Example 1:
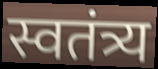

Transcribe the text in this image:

स्वतंत्र्य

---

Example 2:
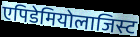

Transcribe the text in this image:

एपिडेमियोलाजिस्ट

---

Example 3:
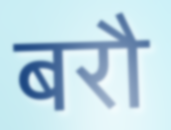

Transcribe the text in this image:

बरौ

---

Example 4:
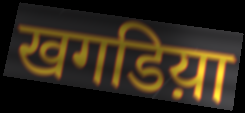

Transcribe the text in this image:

खगडिय़ा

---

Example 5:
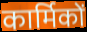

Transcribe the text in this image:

कार्मिकों